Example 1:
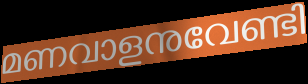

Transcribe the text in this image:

മണവാളനുവേണ്ടി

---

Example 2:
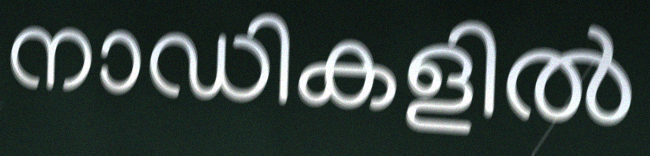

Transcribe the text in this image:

നാഡികളിൽ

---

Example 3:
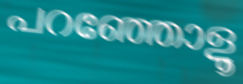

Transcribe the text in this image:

പറഞ്ഞോളൂ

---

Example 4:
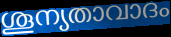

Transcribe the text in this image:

ശൂന്യതാവാദം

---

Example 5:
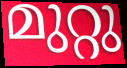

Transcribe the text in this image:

മുറ്റു